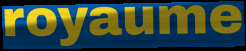
royaume